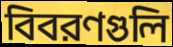
বিবরণগুলি